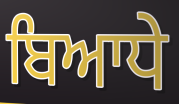
ਬਿਆਧੇ